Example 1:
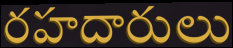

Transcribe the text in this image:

రహదారులు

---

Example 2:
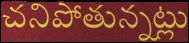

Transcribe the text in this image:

చనిపోతున్నట్లు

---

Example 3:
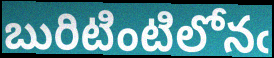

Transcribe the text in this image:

బురిటింటిలోనఁ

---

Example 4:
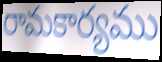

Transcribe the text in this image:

రామకార్యము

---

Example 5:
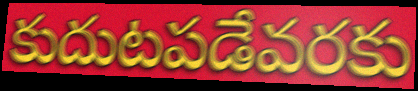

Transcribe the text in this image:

కుదుటపడేవరకు